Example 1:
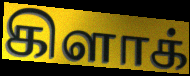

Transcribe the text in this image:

கிளாக்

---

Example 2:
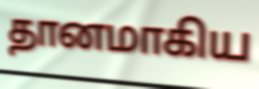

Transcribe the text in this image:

தானமாகிய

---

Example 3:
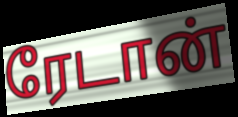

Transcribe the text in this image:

ரேடான்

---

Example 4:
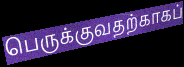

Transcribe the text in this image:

பெருக்குவதற்காகப்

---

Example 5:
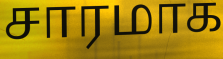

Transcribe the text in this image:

சாரமாக